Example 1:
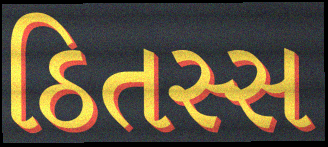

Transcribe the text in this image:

ઠિતસ્સ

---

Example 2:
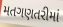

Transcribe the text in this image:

મતગણતરીમાં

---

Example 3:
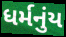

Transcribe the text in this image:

ધર્મનુંય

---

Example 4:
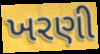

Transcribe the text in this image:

ખરણી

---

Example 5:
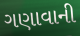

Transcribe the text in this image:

ગણાવાની